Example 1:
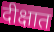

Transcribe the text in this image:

दीक्षात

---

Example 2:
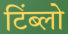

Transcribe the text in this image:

टिंब्लो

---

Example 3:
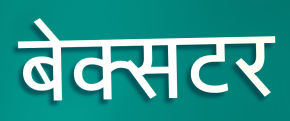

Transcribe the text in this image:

बेक्सटर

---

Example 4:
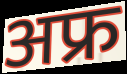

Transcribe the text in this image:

अफ्र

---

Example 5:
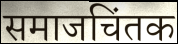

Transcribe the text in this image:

समाजचिंतक